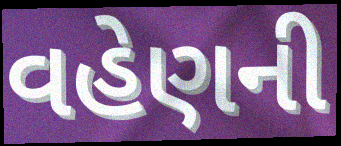
વહેણની